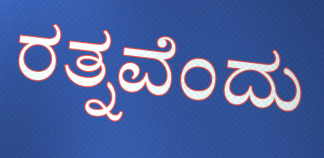
ರತ್ನವೆಂದು